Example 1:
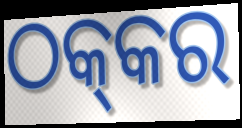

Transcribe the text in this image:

ଠକ୍‍କର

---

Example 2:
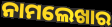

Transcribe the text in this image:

ନାମଲେଖାର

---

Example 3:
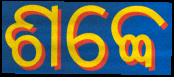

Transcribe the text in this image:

ଶବ୍ବେ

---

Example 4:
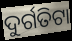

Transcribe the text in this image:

ଦୁର୍ଗତିଟା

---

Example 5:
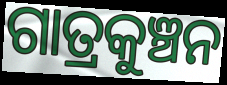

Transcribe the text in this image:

ଗାତ୍ରକୁଞ୍ଚନ